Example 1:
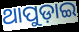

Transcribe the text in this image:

ଥାପୁଡ଼ାଇ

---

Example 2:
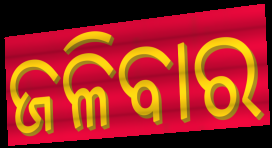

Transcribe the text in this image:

ଜଳିବାର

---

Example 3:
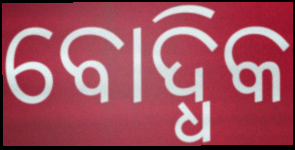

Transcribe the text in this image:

ବୋଦ୍ଧିକ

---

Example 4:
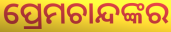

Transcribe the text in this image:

ପ୍ରେମଚାନ୍ଦଙ୍କର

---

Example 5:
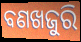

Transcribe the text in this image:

ବଣଖଜୁରି